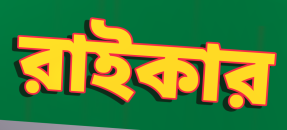
রাইকার